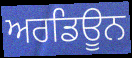
ਅਰਡਿਊਨ